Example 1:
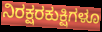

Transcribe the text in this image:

ನಿರಕ್ಷರಕುಕ್ಷಿಗಳೂ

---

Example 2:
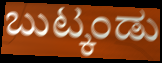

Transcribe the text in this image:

ಬುಟ್ಕಂಡು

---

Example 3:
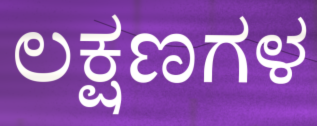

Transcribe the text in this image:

ಲಕ್ಷಣಗಳ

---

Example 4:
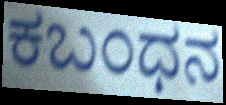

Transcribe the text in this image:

ಕಬಂಧನ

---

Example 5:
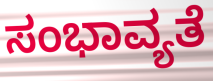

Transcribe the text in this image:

ಸಂಭಾವ್ಯತೆ